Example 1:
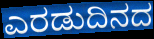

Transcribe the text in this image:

ಎರಡುದಿನದ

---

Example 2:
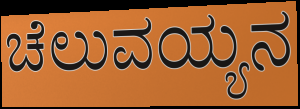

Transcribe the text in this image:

ಚೆಲುವಯ್ಯನ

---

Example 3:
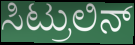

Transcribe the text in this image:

ಸಿಟ್ರುಲಿನ್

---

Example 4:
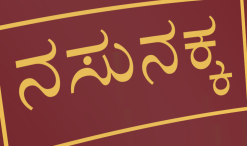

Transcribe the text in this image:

ನಸುನಕ್ಕ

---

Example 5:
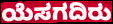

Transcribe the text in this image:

ಯೆಸಗದಿರು